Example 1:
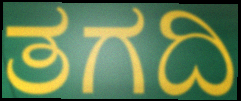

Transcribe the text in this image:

ತಗದಿ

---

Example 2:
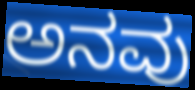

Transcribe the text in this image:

ಅನವು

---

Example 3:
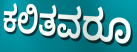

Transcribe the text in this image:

ಕಲಿತವರೂ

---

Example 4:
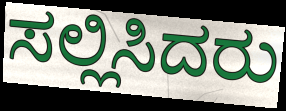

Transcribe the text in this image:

ಸಲ್ಲಿಸಿದರು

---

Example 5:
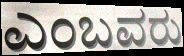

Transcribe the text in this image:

ಎಂಬವರು